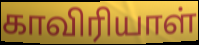
காவிரியாள்